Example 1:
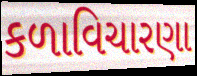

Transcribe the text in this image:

કળાવિચારણા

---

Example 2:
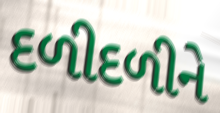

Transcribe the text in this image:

દળીદળીને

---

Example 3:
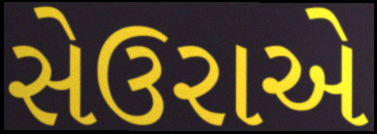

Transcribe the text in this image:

સેઉરાએ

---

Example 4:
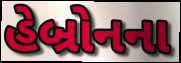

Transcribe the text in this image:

હેબ્રોનના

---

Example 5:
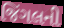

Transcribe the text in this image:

જિંગલની